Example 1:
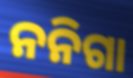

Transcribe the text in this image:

ନନିଗା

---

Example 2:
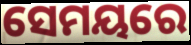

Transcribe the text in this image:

ସେମୟରେ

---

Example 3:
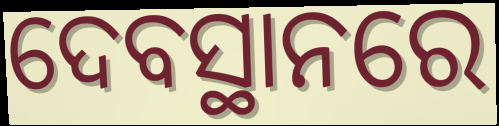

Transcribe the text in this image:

ଦେବସ୍ଥାନରେ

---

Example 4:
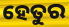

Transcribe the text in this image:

ହେତୁର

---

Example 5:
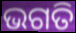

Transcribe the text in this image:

ଭଗତି